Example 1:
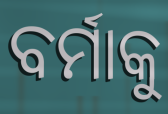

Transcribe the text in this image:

ବର୍ମାକୁ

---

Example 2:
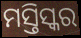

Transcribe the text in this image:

ମସ୍ତିସ୍କର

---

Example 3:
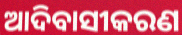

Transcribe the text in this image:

ଆଦିବାସୀକରଣ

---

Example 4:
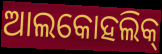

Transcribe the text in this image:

ଆଲକୋହଲିକ୍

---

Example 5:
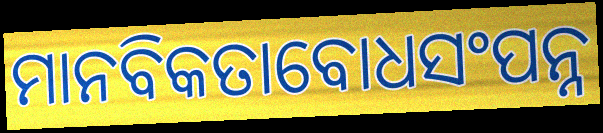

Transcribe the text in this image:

ମାନବିକତାବୋଧସଂପନ୍ନ